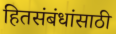
हितसंबंधांसाठी